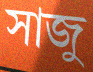
সাজু